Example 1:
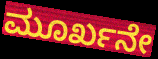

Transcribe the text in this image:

ಮೂರ್ಖನೇ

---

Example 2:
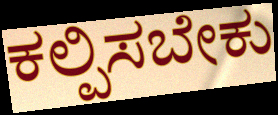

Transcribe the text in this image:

ಕಲ್ಪಿಸಬೇಕು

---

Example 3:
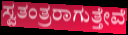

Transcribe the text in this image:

ಸ್ವತಂತ್ರರಾಗುತ್ತೇವೆ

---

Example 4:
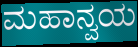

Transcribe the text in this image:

ಮಹಾನ್ವಯ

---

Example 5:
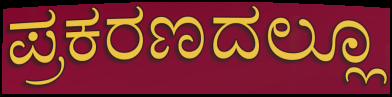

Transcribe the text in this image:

ಪ್ರಕರಣದಲ್ಲೂ